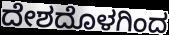
ದೇಶದೊಳಗಿಂದ